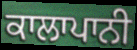
ਕਾਲਾਪਾਨੀ